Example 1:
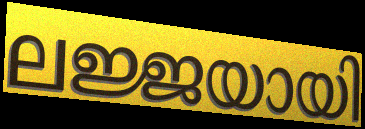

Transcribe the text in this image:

ലജ്ജയായി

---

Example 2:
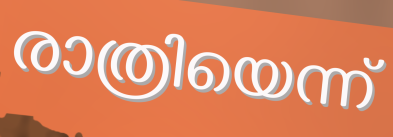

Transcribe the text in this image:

രാത്രിയെന്ന്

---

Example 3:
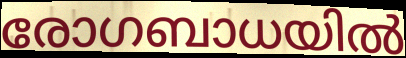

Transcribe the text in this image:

രോഗബാധയിൽ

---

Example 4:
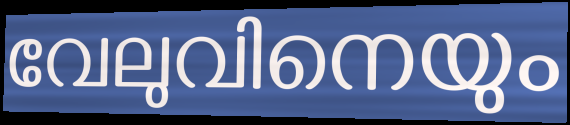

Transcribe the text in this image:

വേലുവിനെയും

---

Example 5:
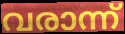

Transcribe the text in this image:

വരാന്ന്